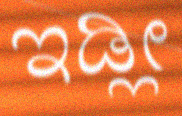
ಇಡ್ಲೀ